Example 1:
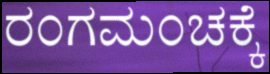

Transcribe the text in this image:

ರಂಗಮಂಚಕ್ಕೆ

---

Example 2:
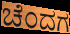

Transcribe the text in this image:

ಚೆಂದಗ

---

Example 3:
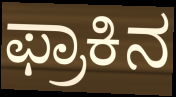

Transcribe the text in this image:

ಫ್ರಾಕಿನ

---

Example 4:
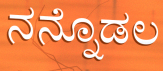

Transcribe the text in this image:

ನನ್ನೊಡಲ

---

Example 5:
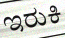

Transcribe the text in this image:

ಇರುಕಿ